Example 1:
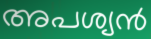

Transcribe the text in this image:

അപശ്യൻ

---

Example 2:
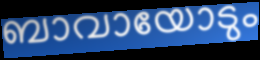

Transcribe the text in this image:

ബാവായോടും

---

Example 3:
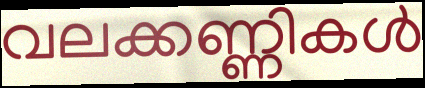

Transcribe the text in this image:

വലക്കണ്ണികൾ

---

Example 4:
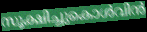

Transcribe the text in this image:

സൂക്ഷിച്ചുകൊൾവിൻ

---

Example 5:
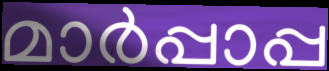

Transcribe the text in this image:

മാർപ്പാപ്പ